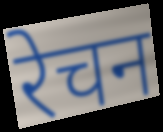
रेचन